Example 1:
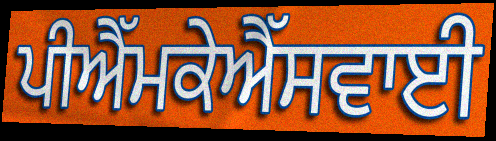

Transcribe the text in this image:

ਪੀਐੱਮਕੇਐੱਸਵਾਈ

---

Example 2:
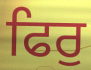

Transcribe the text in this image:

ਫਿਰੁ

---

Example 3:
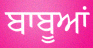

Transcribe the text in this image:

ਬਾਬੂਆਂ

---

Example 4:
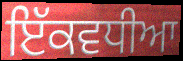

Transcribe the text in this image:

ਇੱਕਵਧੀਆ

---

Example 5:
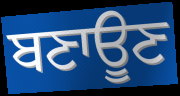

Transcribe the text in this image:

ਬਣਾਊਣ